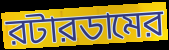
রটারডামের